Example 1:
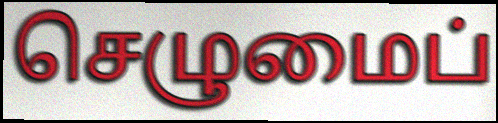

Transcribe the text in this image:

செழுமைப்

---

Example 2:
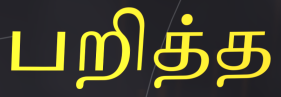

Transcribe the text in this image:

பறித்த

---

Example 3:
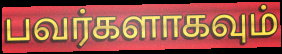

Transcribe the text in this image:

பவர்களாகவும்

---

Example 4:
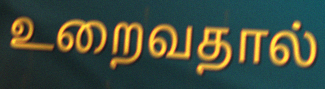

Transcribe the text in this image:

உறைவதால்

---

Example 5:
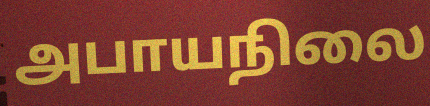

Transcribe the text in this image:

அபாயநிலை